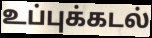
உப்புக்கடல்